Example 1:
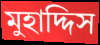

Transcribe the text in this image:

মুহাদ্দিস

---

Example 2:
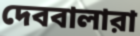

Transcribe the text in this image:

দেববালারা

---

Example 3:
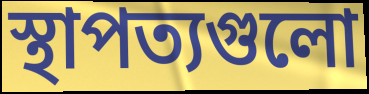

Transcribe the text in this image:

স্থাপত্যগুলো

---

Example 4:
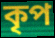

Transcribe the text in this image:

কৃপ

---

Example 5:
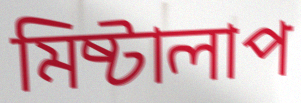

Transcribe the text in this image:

মিষ্টালাপ